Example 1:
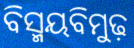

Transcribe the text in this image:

ବିସ୍ମୟବିମୁଢ଼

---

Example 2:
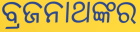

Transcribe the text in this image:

ବ୍ରଜନାଥଙ୍କର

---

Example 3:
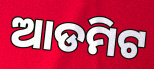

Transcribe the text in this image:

ଆଡମିଟ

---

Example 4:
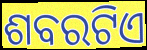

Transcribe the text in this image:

ଶବରଟିଏ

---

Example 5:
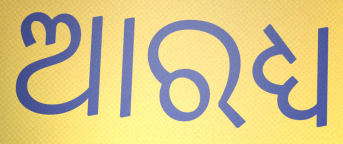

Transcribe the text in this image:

ଆରଧ୍ୟ